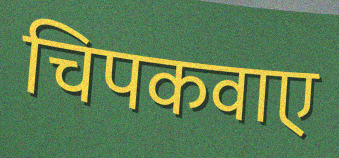
चिपकवाए